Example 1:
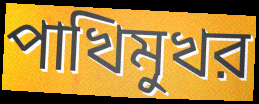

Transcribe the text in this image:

পাখিমুখর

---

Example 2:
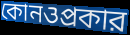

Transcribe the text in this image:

কোনওপ্রকার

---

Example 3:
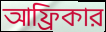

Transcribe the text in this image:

আফ্রিকার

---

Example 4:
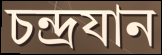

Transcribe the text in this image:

চন্দ্রযান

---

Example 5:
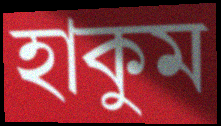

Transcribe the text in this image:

হাকুম